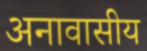
अनावासीय